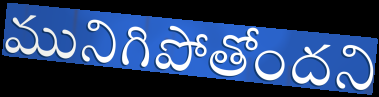
మునిగిపోతోందని